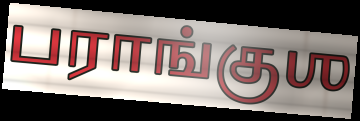
பராங்குஶ